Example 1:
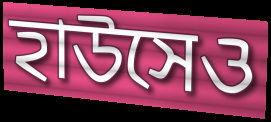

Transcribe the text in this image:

হাউসেও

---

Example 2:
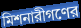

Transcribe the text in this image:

মিশনারীগণের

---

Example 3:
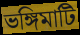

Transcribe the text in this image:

ভঙ্গিমাটি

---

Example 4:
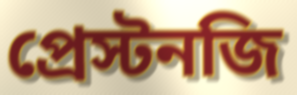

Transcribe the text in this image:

প্রেস্টনজি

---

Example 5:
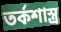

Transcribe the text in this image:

তর্কশাস্ত্র